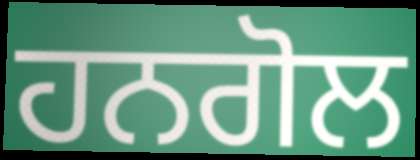
ਹਨਗੋਲ